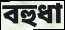
বহুধা